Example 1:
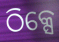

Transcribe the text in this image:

ଠିକ୍ସେ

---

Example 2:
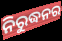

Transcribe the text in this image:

ନିରୁଦ୍ଧନର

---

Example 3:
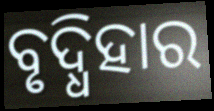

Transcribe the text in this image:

ବୃଦ୍ଧିହାର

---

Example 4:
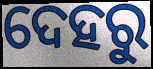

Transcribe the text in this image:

ଦେହରୁ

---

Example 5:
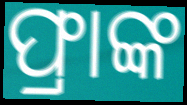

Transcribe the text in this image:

ଫ୍ରାଙ୍କ